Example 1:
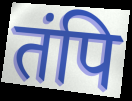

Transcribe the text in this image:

तंपि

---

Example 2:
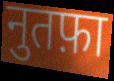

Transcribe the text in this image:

नुतफ़ा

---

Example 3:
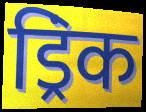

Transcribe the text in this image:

ड्रिंक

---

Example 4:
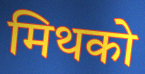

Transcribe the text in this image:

मिथको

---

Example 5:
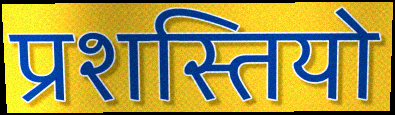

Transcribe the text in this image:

प्रशस्तियो